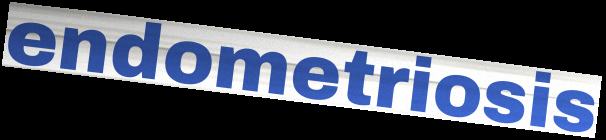
endometriosis